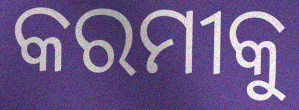
କରମୀକୁ